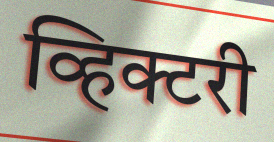
व्हिक्टरी